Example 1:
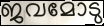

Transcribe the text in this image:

ജവമോടു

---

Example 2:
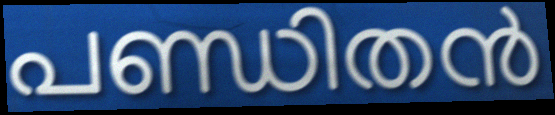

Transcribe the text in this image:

പണ്ഡിതൻ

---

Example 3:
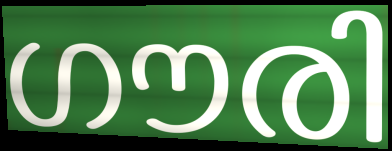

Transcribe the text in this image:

ഗൗരി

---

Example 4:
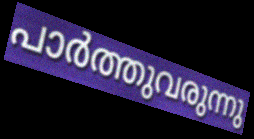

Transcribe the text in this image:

പാർത്തുവരുന്നു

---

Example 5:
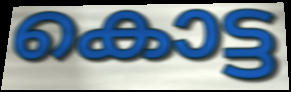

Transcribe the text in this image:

കൊട്ട